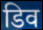
डिव